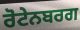
ਰੋਟੇਨਬਰਗ